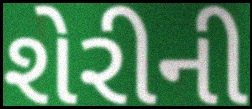
શેરીની